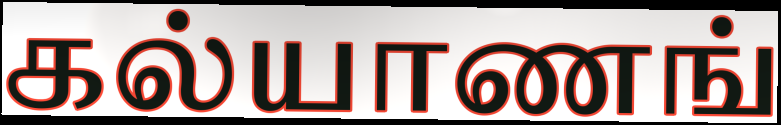
கல்யாணங்